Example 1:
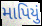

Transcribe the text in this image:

માપિયું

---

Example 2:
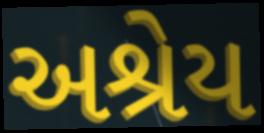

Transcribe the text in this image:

અશ્રેય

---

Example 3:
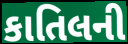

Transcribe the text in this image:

કાતિલની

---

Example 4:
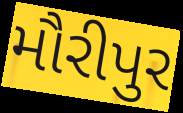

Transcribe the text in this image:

મૌરીપુર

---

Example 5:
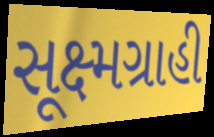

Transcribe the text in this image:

સૂક્ષ્મગ્રાહી